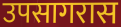
उपसागरास